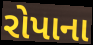
રોપાના